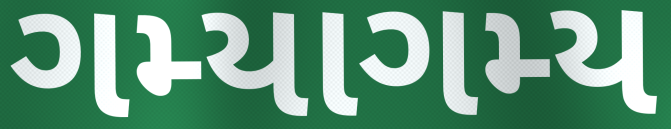
ગમ્યાગમ્ય